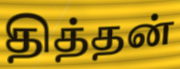
தித்தன்